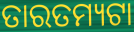
ତାରତମ୍ୟଟା